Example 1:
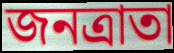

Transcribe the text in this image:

জনত্রাতা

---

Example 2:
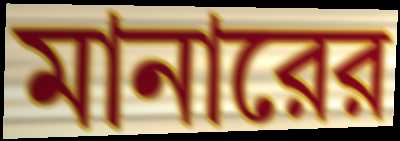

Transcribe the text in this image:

মানারের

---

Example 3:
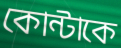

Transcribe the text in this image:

কোন্টাকে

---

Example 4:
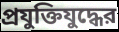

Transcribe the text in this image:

প্রযুক্তিযুদ্ধের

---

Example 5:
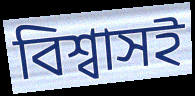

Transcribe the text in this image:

বিশ্বাসই